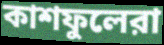
কাশফুলেরা